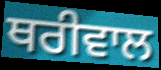
ਥਰੀਵਾਲ